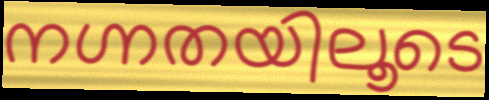
നഗ്നതയിലൂടെ